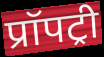
प्रॉपट्री